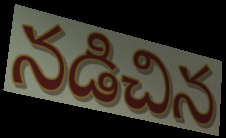
నడిచిన